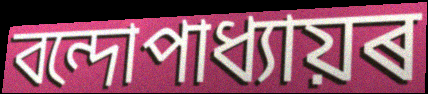
বন্দোপাধ্যায়ৰ